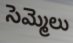
సెమ్మెలు